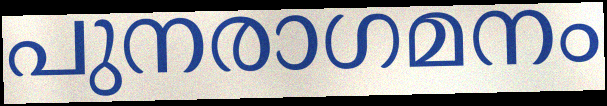
പുനരാഗമനം